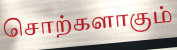
சொற்களாகும்